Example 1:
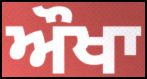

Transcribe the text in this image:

ਔਖਾ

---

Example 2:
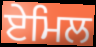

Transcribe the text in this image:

ਏਮਿਲ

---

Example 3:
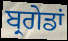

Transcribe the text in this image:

ਬ੍ਰਗੇਡਾਂ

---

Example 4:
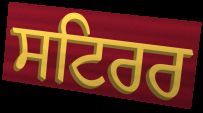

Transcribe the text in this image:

ਸਟਿਰਰ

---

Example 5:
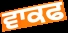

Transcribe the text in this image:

ਵਾਕਫ